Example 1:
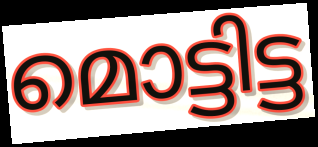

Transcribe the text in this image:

മൊട്ടിട്ട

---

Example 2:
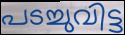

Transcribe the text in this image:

പടച്ചുവിട്ട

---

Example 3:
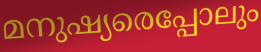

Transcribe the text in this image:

മനുഷ്യരെപ്പോലും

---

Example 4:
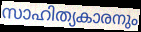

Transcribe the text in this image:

സാഹിത്യകാരനും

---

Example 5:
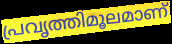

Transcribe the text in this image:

പ്രവൃത്തിമൂലമാണ്